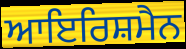
ਆਇਰਿਸ਼ਮੈਨ